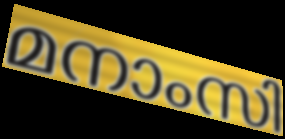
മനാംസി